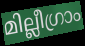
മില്ലീഗ്രാം